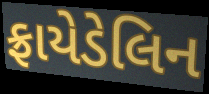
ફ્રાયેડેલિન